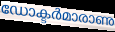
ഡോക്ടർമാരാണു